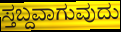
ಸ್ತಬ್ದವಾಗುವುದು